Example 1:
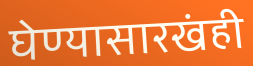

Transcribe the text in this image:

घेण्यासारखंही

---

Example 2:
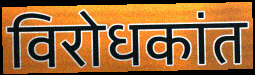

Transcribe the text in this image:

विरोधकांत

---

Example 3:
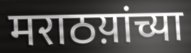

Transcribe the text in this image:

मराठय़ांच्या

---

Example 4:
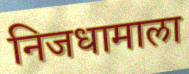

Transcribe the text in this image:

निजधामाला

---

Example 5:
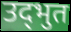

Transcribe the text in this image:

उद्भुत